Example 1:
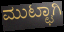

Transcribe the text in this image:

ಮುಟ್ಟಾಗಿ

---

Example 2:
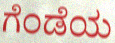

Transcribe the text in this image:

ಗೆಂಡೆಯ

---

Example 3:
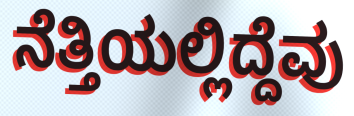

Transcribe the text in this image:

ನೆತ್ತಿಯಲ್ಲಿದ್ದೆವು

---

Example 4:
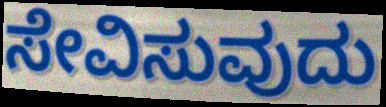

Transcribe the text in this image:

ಸೇವಿಸುವುದು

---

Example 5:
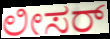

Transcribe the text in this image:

ಲೀಸರ್